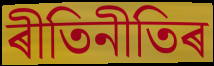
ৰীতিনীতিৰ